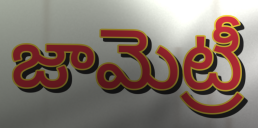
జామెట్రీ